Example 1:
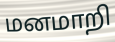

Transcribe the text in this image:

மனமாறி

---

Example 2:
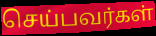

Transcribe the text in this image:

செய்பவர்கள்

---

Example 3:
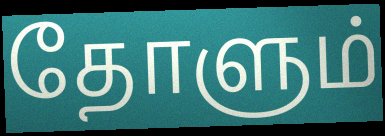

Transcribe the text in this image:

தோளும்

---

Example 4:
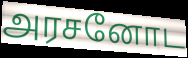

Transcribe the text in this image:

அரசனோட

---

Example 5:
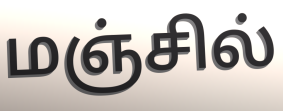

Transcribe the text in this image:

மஞ்சில்